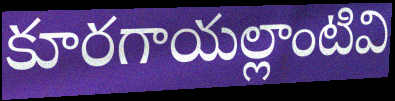
కూరగాయల్లాంటివి